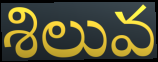
శిలువ